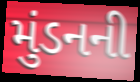
મુંડનની